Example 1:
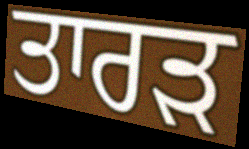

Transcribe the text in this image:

ਤਾਰੜ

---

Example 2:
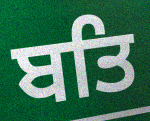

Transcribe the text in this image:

ਬਤਿ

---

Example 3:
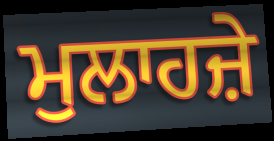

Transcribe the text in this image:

ਮੁਲਾਹਜ਼ੇ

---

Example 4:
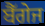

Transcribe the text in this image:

ਬੈੱਗੇਜ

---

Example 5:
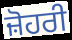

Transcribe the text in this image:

ਜ਼ੋਹਰੀ